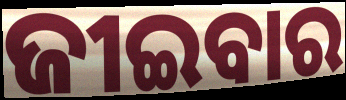
ଜୀଇବାର